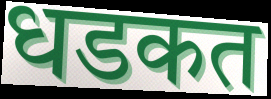
धडकत